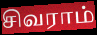
சிவராம்